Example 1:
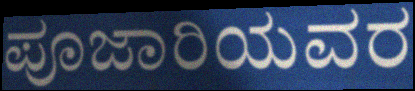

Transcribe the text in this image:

ಪೂಜಾರಿಯವರ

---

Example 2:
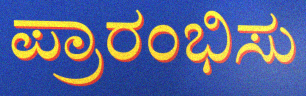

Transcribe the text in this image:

ಪ್ರಾರಂಭಿಸು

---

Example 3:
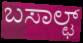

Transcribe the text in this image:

ಬಸಾಲ್ಟ್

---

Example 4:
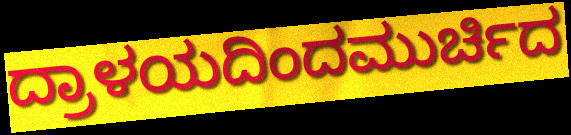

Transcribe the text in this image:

ದ್ರಾಳಯದಿಂದಮುರ್ಚಿದ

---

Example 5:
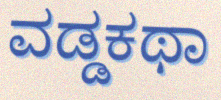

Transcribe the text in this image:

ವಡ್ಡಕಥಾ